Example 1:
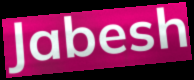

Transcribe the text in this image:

Jabesh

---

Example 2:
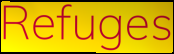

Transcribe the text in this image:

Refuges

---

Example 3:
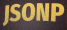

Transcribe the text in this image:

JSONP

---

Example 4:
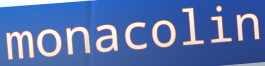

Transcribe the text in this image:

monacolin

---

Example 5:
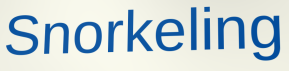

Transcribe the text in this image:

Snorkeling